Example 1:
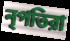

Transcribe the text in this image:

নৃপতিরা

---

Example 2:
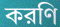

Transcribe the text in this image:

করণি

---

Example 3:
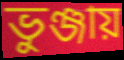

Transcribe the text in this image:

ভুঞ্জায়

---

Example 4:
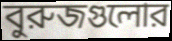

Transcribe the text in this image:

বুরুজগুলোর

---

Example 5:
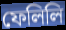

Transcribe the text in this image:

ফেলিলি